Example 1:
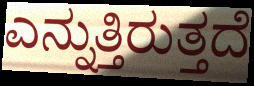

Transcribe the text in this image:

ಎನ್ನುತ್ತಿರುತ್ತದೆ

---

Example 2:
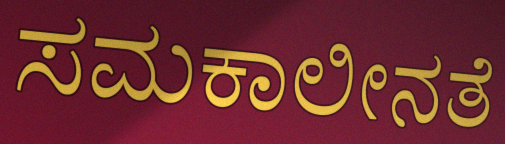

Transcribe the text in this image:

ಸಮಕಾಲೀನತೆ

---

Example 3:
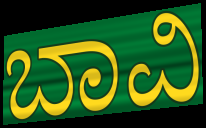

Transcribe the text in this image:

ಬಾವಿ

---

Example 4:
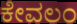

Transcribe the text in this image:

ಕೇವಲಂ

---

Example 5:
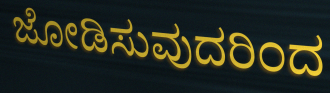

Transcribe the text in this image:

ಜೋಡಿಸುವುದರಿಂದ